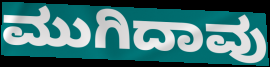
ಮುಗಿದಾವು